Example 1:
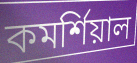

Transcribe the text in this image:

কমর্শিয়াল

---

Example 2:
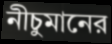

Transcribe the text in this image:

নীচুমানের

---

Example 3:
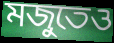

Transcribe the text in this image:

মজুতেও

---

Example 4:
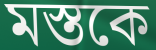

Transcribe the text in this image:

মস্তকে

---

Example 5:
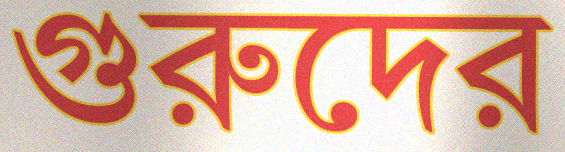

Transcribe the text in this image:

গুরুদের